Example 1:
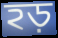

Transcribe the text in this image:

হড়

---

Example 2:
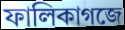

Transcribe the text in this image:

ফালিকাগজে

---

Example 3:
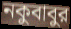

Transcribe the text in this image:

নকুবাবুর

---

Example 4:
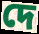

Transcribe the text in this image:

দে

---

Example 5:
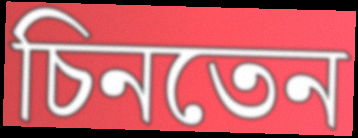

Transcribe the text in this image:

চিনতেন